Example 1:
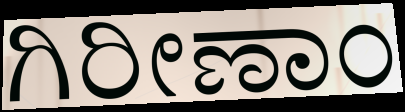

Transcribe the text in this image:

ಗಿರೀಣಾಂ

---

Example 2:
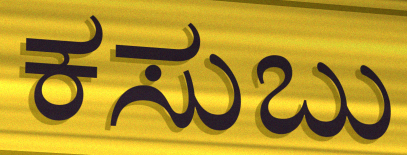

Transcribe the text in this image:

ಕಸುಬು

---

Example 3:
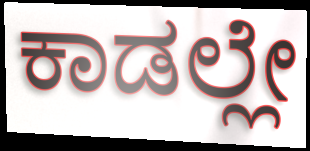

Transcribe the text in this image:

ಕಾಡಲ್ಲೇ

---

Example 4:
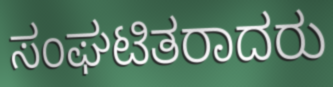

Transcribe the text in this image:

ಸಂಘಟಿತರಾದರು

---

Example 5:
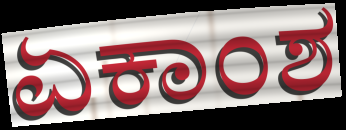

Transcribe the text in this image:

ಏಕಾಂಶ